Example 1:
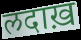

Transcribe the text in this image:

लदाख़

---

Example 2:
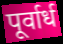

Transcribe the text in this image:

पूर्वार्ध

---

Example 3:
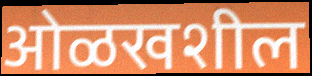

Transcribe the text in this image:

ओळखशील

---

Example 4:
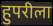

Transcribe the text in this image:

हुपरीला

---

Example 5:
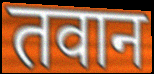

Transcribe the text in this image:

तवान